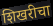
शिखरीचा